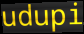
udupi